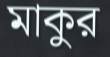
মাকুর